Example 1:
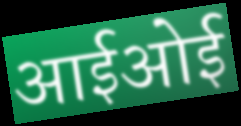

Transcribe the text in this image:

आईओई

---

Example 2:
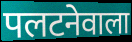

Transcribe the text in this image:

पलटनेवाला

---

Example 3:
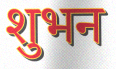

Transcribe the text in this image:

शुभन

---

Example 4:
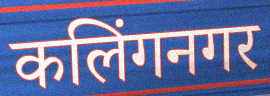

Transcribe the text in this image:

कलिंगनगर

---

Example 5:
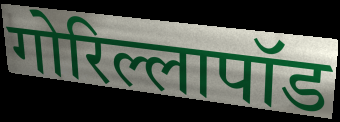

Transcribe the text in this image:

गोरिल्लापॉड